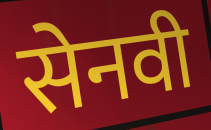
सेनवी